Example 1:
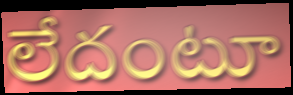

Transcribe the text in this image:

లేదంటూ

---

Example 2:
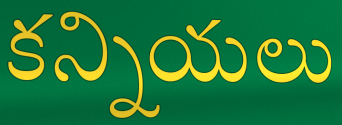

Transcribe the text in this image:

కన్నియలు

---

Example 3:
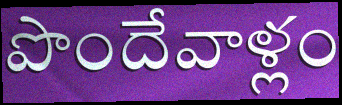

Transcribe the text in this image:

పొందేవాళ్లం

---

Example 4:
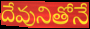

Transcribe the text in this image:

దేవునితోనే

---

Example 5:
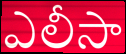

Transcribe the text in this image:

ఎలీసా